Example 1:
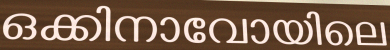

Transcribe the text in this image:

ഒക്കിനാവോയിലെ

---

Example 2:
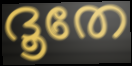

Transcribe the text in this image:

ദൂതേ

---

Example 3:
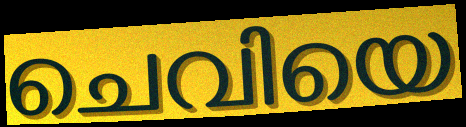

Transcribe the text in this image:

ചെവിയെ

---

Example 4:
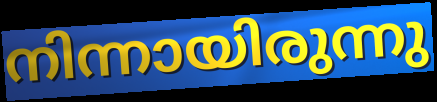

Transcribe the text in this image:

നിന്നായിരുന്നു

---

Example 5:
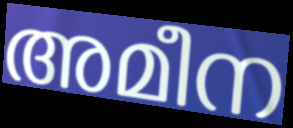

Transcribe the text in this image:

അമീന